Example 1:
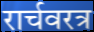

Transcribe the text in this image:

रार्चवरत्र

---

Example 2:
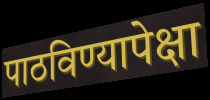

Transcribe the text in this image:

पाठविण्यापेक्षा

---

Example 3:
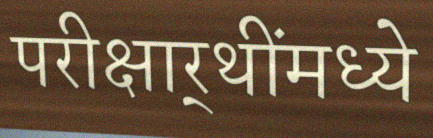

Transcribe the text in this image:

परीक्षार्थींमध्ये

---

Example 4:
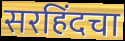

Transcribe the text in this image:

सरहिंदचा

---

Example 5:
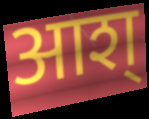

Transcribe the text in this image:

आश्